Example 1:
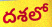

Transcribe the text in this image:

దశలో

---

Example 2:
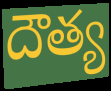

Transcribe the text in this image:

దౌత్య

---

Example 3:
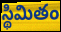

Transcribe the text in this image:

స్థిమితం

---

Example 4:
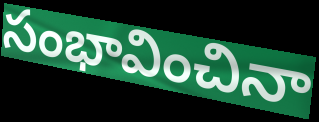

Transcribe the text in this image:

సంభావించినా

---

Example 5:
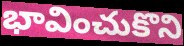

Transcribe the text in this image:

భావించుకొని